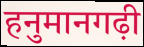
हनुमानगढ़ी